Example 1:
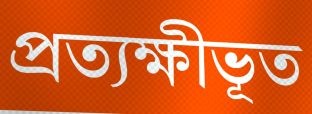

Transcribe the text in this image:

প্রত্যক্ষীভূত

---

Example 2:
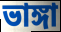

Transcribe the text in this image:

ভাঙ্গা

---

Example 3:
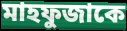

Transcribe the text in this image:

মাহফুজাকে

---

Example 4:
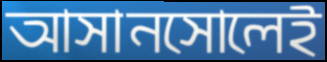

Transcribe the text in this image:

আসানসোলেই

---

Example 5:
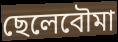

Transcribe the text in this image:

ছেলেবৌমা